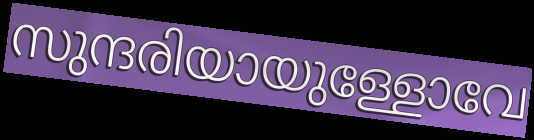
സുന്ദരിയായുള്ളോവേ